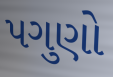
પગુણો